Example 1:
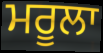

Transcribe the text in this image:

ਮਰੂਲਾ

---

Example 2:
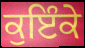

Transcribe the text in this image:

ਕੁਇੰਕੇ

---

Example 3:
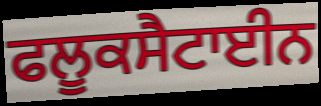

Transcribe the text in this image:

ਫਲੂਕਸੈਟਾਈਨ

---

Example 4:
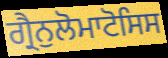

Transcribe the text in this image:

ਗ੍ਰੈਨੁਲੋਮਾਟੋਸਿਸ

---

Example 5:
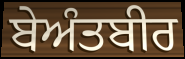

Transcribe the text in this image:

ਬੇਅੰਤਬੀਰ